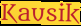
Kausik